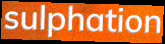
sulphation